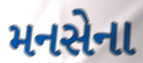
મનસેના